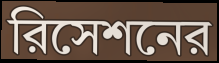
রিসেশনের